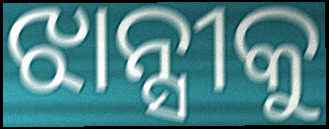
ଝାନ୍ସୀକୁ